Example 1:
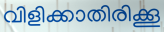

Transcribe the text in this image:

വിളിക്കാതിരിക്കൂ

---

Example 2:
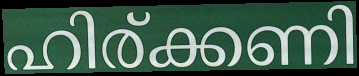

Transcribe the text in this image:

ഹിര്ക്കണി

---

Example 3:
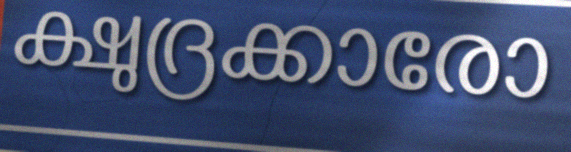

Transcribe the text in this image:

ക്ഷുദ്രക്കാരോ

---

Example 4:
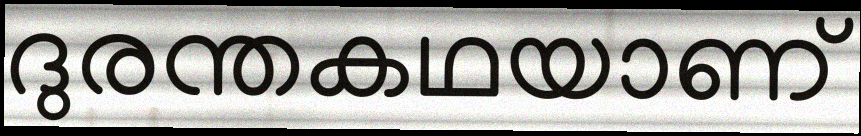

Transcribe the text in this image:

ദുരന്തകഥയാണ്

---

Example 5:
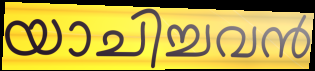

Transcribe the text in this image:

യാചിച്ചവൻ